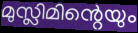
മുസ്ലിമിന്റെയും